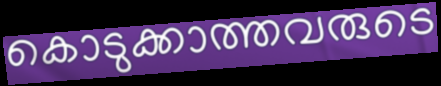
കൊടുക്കാത്തവരുടെ